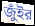
জুঁইর